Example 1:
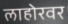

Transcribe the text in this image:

लाहोरवर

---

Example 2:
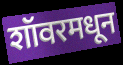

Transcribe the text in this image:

शॉवरमधून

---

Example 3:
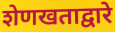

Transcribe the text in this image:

शेणखताद्वारे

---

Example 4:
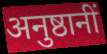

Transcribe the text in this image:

अनुष्ठानीं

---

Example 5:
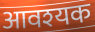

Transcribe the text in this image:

आवश्‍यक